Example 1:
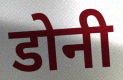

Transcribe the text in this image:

डोनी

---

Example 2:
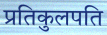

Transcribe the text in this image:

प्रतिकुलपति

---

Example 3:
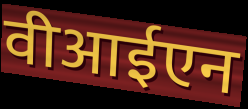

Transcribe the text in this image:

वीआईएन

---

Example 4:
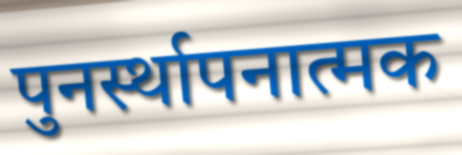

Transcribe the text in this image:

पुनर्स्थापनात्मक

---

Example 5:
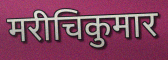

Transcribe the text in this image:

मरीचिकुमार